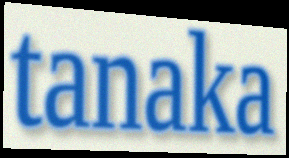
tanaka